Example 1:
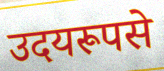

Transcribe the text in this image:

उदयरूपसे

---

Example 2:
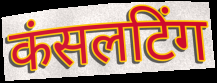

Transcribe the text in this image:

कंसलटिंग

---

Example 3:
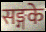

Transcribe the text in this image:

सङ्गके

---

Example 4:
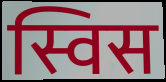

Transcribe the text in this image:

स्विस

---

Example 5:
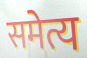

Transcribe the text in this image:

समेत्य